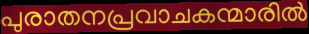
പുരാതനപ്രവാചകന്മാരിൽ